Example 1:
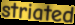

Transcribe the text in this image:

striated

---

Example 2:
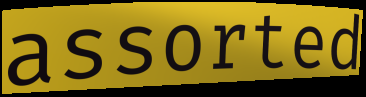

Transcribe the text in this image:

assorted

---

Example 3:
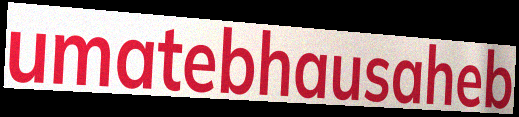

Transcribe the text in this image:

umatebhausaheb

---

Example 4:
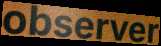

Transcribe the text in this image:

observer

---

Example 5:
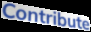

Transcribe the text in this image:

Contribute